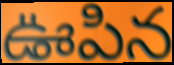
ఊపిన